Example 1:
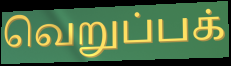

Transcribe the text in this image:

வெறுப்பக்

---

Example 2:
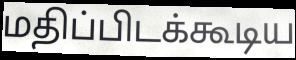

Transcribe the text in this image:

மதிப்பிடக்கூடிய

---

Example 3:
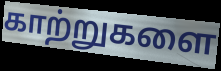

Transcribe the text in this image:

காற்றுகளை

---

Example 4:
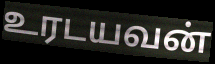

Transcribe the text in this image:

உரடயவன்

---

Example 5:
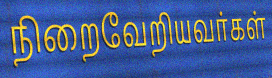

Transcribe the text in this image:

நிறைவேறியவர்கள்